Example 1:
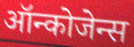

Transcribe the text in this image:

ऑन्कोजेन्स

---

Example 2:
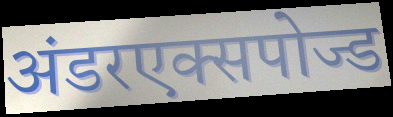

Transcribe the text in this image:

अंडरएक्सपोज्ड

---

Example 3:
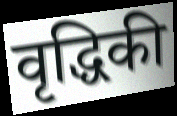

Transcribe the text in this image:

वृद्धिकी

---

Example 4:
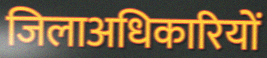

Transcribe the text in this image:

जिलाअधिकारियों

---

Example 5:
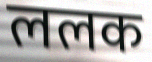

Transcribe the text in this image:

ललक